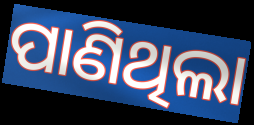
ପାଣିଥିଲା